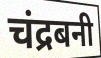
चंद्रबनी